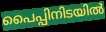
പൈപ്പിനിടയിൽ